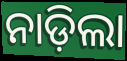
ନାଡ଼ିଲା